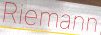
Riemann